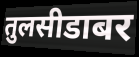
तुलसीडाबर